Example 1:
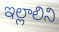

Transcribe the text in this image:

ఇల్లాలిని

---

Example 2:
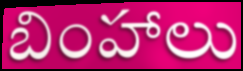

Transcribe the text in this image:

బింహాలు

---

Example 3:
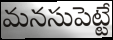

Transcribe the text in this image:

మనసుపెట్టే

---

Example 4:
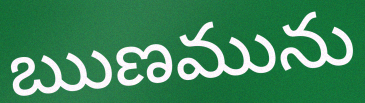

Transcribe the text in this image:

ఋణమును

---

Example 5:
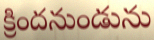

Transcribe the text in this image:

క్రిందనుండును